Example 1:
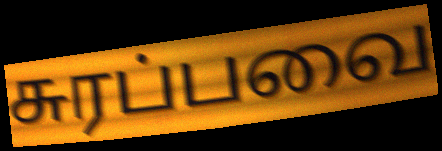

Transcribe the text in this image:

சுரப்பவை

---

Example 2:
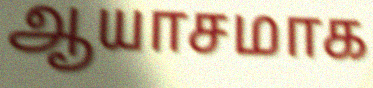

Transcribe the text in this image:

ஆயாசமாக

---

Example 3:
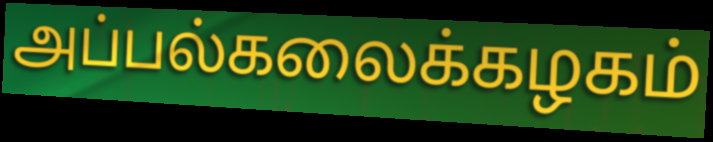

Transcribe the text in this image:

அப்பல்கலைக்கழகம்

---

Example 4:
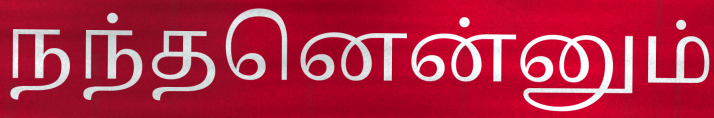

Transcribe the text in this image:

நந்தனென்னும்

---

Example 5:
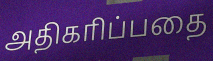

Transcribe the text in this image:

அதிகரிப்பதை